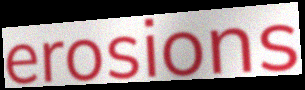
erosions